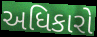
અધિકારો